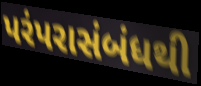
પરંપરાસંબંધથી